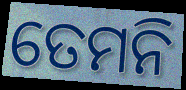
ତେମନି